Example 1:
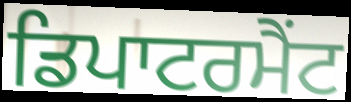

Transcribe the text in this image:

ਡਿਪਾਟਰਮੈਂਟ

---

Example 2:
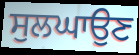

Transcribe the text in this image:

ਸੁਲਘਾਉਣ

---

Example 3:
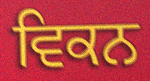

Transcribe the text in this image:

ਵਿਕਨ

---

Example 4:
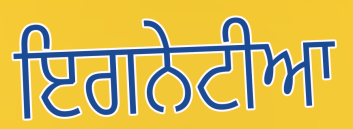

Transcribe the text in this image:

ਇਗਨੇਟੀਆ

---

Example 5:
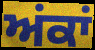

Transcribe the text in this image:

ਅਂਕਾਂ